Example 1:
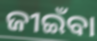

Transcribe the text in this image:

ଜୀଇଁବା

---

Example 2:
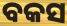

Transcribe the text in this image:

ବକସ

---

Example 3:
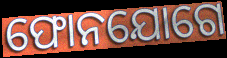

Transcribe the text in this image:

ଫୋନଯୋଗେ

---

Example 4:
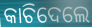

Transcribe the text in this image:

କାଚିଦେଲେ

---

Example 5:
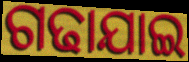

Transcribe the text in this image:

ଗଢାଯାଇ